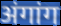
अंगांग